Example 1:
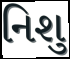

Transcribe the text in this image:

નિશુ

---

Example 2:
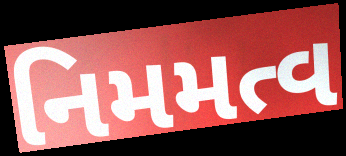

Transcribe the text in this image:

નિમમત્વ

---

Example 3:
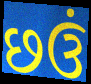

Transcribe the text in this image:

છઉં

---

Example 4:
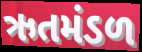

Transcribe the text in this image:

ઋતમંડળ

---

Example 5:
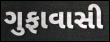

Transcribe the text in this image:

ગુફાવાસી